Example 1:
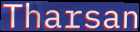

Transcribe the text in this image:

Tharsan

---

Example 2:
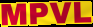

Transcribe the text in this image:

MPVL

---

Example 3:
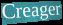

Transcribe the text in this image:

Creager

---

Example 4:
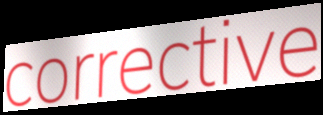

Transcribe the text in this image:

corrective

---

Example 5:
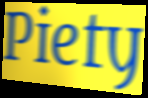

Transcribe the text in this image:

Piety